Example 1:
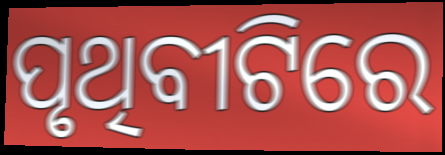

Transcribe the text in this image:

ପୃଥିବୀଟିରେ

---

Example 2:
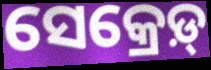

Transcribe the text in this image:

ସେକ୍ରେଡ଼୍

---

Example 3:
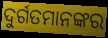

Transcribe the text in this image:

ଦୁର୍ଗତମାନଙ୍କର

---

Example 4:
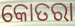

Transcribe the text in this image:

କୋତରା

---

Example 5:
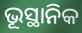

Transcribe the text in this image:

ଭୂସ୍ଥାନିକ